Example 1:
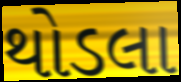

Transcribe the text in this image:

થોડલા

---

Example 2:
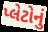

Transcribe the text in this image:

પ્લેટોનું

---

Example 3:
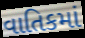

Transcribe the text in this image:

વાતિકમાં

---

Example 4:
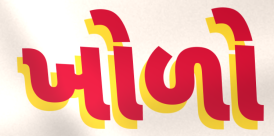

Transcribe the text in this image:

ખોળો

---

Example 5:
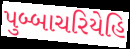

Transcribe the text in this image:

પુબ્બાચરિયેહિ